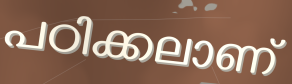
പഠിക്കലാണ്